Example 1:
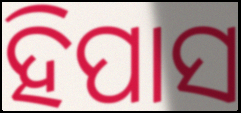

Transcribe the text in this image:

ହିପାସ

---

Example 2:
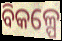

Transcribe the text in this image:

ବିକଳ୍ପେ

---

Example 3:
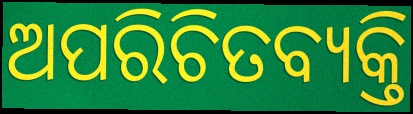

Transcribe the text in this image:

ଅପରିଚିତବ୍ୟକ୍ତି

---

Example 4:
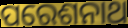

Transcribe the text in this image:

ପରେଶନାଥ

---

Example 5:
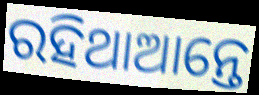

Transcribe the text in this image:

ରହିଥାଆନ୍ତେ